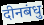
दीनबंधु